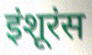
इंशूरंस